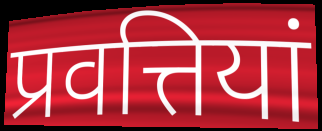
प्रवत्तियां